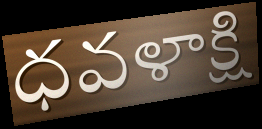
ధవళాక్షి